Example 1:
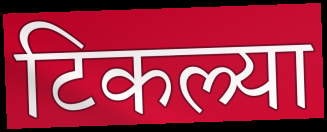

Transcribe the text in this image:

टिकल्या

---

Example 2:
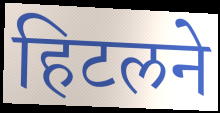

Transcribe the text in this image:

हिटलने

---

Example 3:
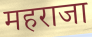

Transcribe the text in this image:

महराजा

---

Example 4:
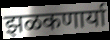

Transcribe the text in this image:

झळकणार्या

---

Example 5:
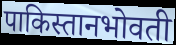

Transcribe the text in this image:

पाकिस्तानभोवती